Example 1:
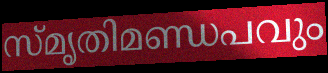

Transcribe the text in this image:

സ്മൃതിമണ്ഡപവും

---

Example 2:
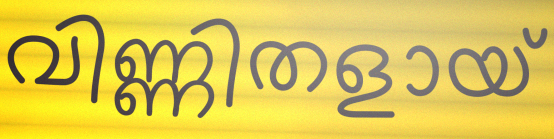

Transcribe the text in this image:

വിണ്ണിതളായ്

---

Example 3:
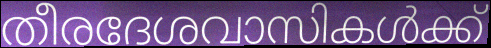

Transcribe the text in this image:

തീരദേശവാസികൾക്ക്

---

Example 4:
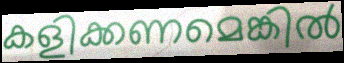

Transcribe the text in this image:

കളിക്കണമെങ്കിൽ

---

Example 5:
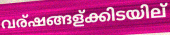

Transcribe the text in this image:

വര്ഷങ്ങള്ക്കിടയില്